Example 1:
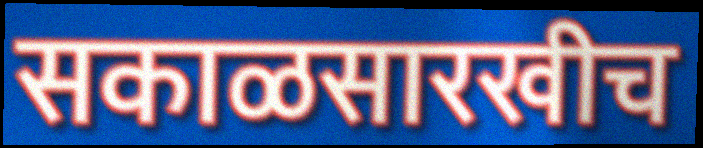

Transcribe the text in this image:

सकाळसारखीच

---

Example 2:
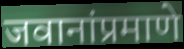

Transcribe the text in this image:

जवानांप्रमाणे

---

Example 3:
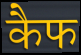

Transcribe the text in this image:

कैफ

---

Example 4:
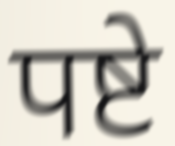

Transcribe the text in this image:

पष्टे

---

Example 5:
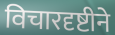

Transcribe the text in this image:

विचारदृष्टीने